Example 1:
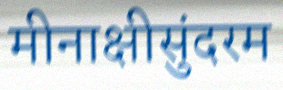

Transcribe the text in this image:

मीनाक्षीसुंदरम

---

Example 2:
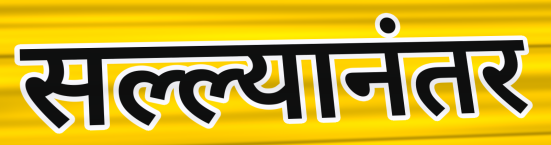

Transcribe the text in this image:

सल्ल्यानंतर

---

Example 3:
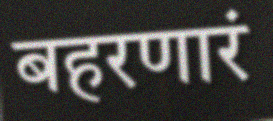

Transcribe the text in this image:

बहरणारं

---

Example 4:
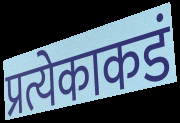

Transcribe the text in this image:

प्रत्येकाकडं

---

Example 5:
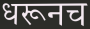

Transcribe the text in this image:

धरूनच